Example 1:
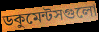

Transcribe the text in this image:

ডকুমেন্টসগুলো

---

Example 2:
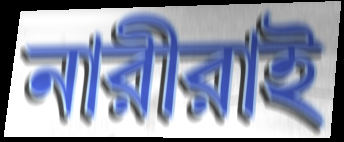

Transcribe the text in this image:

নারীরাই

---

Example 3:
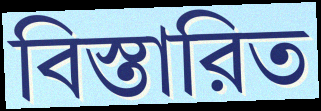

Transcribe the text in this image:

বিস্তারিত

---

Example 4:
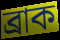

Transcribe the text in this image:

ব্রাক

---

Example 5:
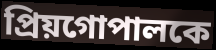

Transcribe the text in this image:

প্রিয়গোপালকে